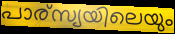
പാര്സ്യയിലെയും